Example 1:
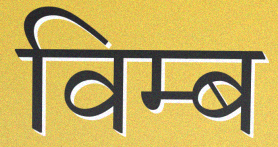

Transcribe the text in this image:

विम्ब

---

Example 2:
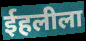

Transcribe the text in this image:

ईहलीला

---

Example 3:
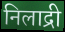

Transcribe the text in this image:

निलाद्री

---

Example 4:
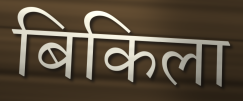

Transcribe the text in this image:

बिकिला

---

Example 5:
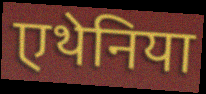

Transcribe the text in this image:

एथेनिया